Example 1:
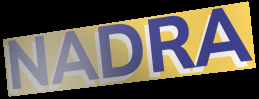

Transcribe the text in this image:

NADRA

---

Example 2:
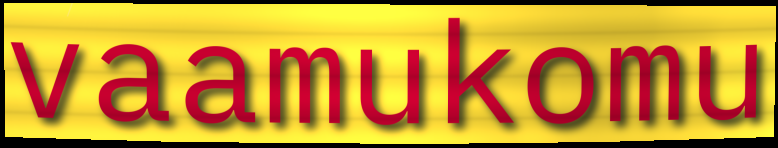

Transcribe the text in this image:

vaamukomu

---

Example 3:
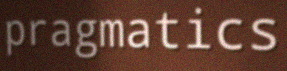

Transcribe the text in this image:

pragmatics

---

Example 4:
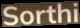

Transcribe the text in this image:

Sorthi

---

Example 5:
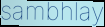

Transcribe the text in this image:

sambhlay